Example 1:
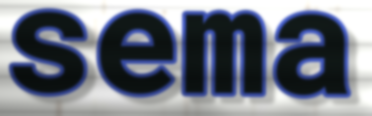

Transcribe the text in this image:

sema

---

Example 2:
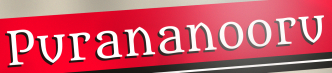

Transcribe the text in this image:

Purananooru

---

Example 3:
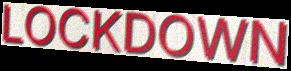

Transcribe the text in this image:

LOCKDOWN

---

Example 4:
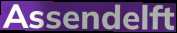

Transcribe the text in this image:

Assendelft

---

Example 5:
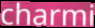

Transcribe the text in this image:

charmi